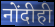
नोंदीही